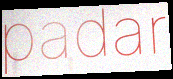
padar